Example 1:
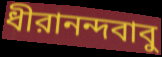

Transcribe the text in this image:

ধীরানন্দবাবু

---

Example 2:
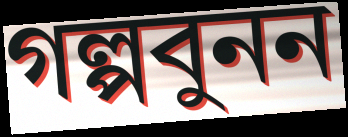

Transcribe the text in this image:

গল্পবুনন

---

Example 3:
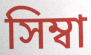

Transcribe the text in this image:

সিম্বা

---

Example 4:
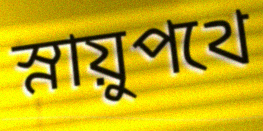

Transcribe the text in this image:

স্নায়ুপথে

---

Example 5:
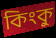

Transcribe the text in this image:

কিংকু